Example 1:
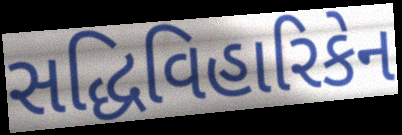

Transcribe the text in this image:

સદ્ધિવિહારિકેન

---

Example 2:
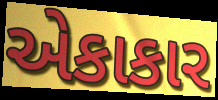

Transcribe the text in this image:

એકાકાર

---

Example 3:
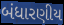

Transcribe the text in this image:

બંધારણીય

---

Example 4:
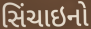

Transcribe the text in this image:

સિંચાઇનો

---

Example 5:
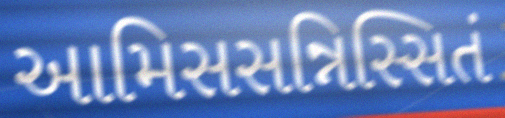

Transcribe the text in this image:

આમિસસન્નિસ્સિતં